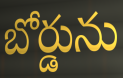
బోర్డును